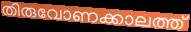
തിരുവോണക്കാലത്ത്